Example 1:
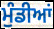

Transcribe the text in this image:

ਮੁੰਡੀਆਂ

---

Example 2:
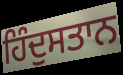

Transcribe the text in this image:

ਹਿੰਦੁਸਤਾਨ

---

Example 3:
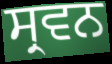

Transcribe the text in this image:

ਸ੍ਰਵਨ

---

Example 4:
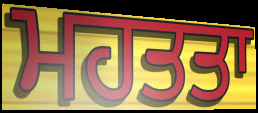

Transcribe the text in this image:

ਮਹਤਤਾ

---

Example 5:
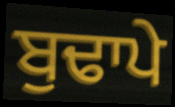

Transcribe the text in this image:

ਬੁਢਾਪੇ